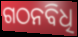
ଗଠନବିଧି